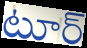
టూర్